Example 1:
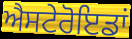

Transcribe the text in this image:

ਐਸਟੇਰੋਇਡਾਂ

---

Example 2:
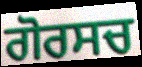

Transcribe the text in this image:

ਗੋਰਸਚ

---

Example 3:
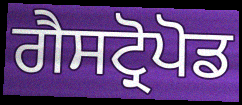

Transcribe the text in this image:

ਗੈਸਟ੍ਰੋਪੋਡ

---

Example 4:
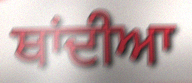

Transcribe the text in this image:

ਥਾਂਦੀਆ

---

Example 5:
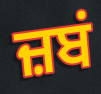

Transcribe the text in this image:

ਜ਼ਬਂ